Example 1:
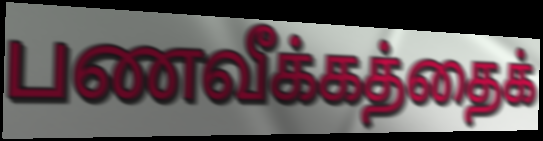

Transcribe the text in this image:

பணவீக்கத்தைக்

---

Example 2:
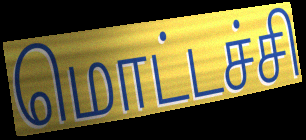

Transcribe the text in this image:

மொட்டச்சி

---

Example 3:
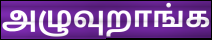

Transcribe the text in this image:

அழுவுறாங்க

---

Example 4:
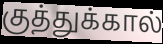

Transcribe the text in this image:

குத்துக்கால்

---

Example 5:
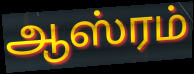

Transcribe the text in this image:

ஆஸ்ரம்